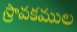
స్రావకముల